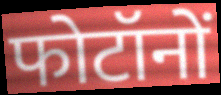
फोटॉनों